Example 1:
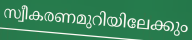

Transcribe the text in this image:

സ്വീകരണമുറിയിലേക്കും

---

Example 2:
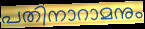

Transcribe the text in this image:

പതിനാറാമനും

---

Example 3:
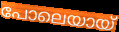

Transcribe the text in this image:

പോലെയായ്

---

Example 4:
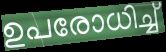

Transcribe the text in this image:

ഉപരോധിച്ച്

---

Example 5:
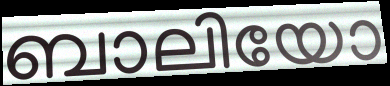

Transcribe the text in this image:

ബാലിയോ